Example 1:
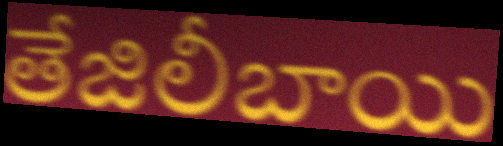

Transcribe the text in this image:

తేజిలీబాయి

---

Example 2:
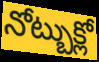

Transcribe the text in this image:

నోట్బుక్లో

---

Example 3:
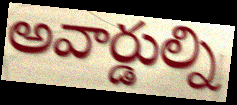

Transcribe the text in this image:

అవార్డుల్ని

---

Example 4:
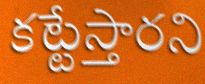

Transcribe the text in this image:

కట్టేస్తారని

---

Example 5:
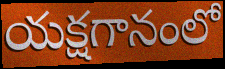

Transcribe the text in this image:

యక్షగానంలో